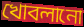
খোবলানো